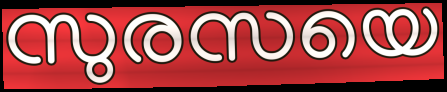
സുരസയെ